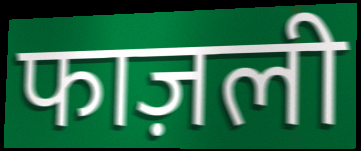
फाज़ली